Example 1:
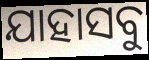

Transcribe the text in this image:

ଯାହାସବୁ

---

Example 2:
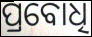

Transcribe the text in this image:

ପ୍ରବୋଧି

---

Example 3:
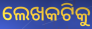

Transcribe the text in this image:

ଲେଖକଟିକୁ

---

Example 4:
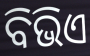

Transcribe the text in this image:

ବିଭିଏ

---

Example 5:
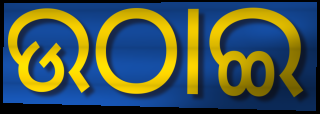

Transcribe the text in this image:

ଉଠାଇ